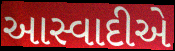
આસ્વાદીએ